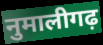
नुमालीगढ़